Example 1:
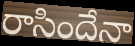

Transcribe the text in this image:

రాసిందేనా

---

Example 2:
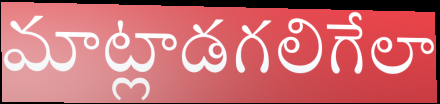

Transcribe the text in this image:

మాట్లాడగలిగేలా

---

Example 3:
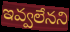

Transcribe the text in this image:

ఇవ్వలేనని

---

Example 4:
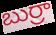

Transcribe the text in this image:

బుర్రా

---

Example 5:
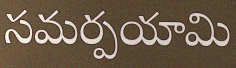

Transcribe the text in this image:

సమర్పయామి